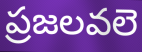
ప్రజలవలె